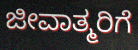
ಜೀವಾತ್ಮರಿಗೆ